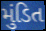
મુંડિત